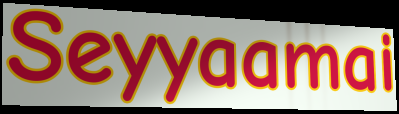
Seyyaamai